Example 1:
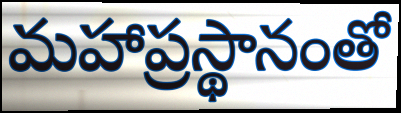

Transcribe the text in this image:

మహాప్రస్థానంతో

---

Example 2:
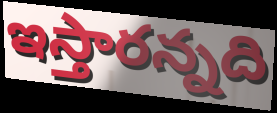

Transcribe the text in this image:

ఇస్తారన్నది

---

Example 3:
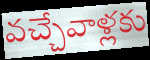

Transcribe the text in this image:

వచ్చేవాళ్లకు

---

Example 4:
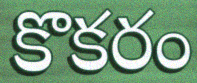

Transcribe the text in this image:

కొకరం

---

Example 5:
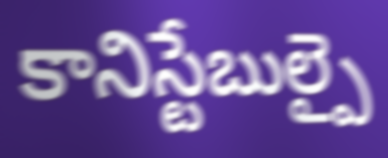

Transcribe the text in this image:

కానిస్టేబుల్పై